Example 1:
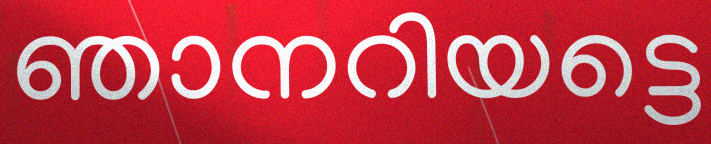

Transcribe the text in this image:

ഞാനറിയട്ടെ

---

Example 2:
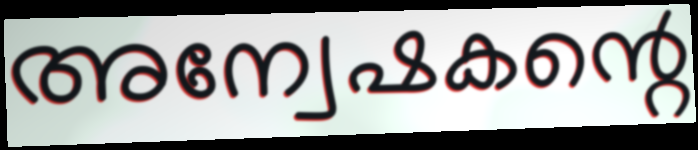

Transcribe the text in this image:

അന്വേഷകന്റെ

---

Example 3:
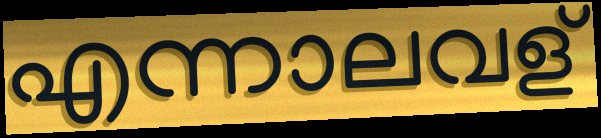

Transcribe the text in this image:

എന്നാലവള്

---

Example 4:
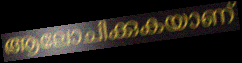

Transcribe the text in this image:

ആലോചിക്കുകയാണ്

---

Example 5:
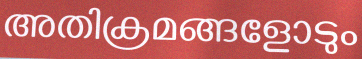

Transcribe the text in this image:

അതിക്രമങ്ങളോടും